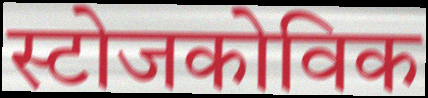
स्टोजकोविक